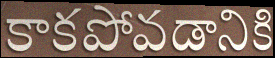
కాకపోవడానికి